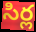
సిర్ల